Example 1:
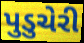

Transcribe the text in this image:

પુડુચેરી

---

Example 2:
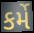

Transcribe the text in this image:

કર્મે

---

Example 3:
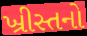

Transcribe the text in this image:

ખ્રીસ્તનો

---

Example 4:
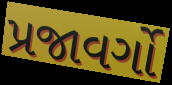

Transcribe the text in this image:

પ્રજાવર્ગો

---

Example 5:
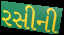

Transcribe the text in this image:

રસીની